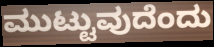
ಮುಟ್ಟುವುದೆಂದು